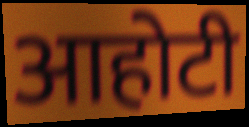
आहोटी